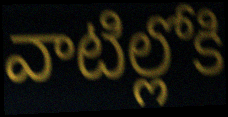
వాటిల్లోకి